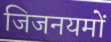
जिजनयमों